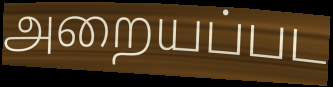
அறையப்பட